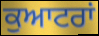
ਕੁਆਟਰਾਂ